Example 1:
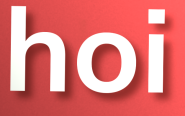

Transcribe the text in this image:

hoi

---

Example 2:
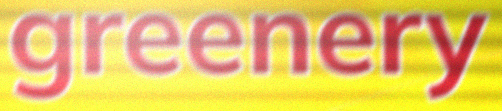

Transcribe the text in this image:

greenery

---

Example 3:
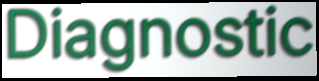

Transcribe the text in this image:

Diagnostic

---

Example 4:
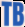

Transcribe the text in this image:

TB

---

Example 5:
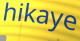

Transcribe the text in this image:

hikaye